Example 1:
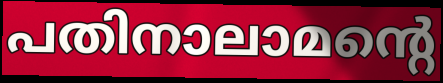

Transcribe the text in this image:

പതിനാലാമന്റെ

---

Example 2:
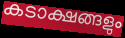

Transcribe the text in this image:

കടാക്ഷങ്ങളും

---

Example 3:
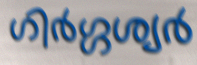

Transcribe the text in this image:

ഗിർഗ്ഗശ്യർ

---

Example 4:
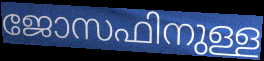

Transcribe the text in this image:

ജോസഫിനുള്ള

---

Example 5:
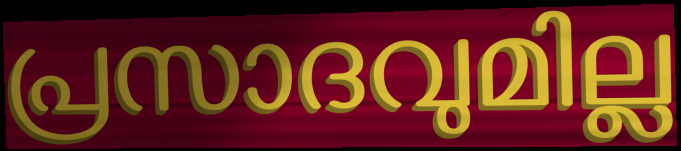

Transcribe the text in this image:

പ്രസാദവുമില്ല